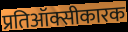
प्रतिऑक्सीकारक